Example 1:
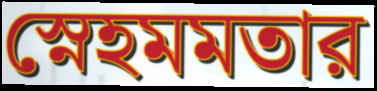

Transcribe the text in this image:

স্নেহমমতার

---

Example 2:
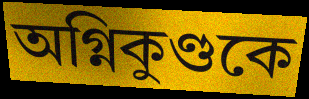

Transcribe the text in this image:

অগ্নিকুণ্ডকে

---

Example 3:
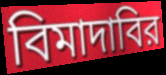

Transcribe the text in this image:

বিমাদাবির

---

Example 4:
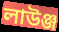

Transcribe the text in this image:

লাউঞ্জ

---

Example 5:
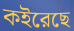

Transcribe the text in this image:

কইরেছে